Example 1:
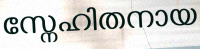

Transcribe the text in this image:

സ്നേഹിതനായ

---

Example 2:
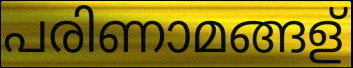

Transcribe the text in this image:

പരിണാമങ്ങള്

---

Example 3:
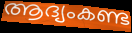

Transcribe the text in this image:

ആദ്യംകണ്ട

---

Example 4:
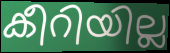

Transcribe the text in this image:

കീറിയില്ല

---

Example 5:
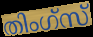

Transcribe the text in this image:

തിംഗ്സ്